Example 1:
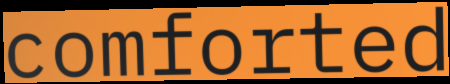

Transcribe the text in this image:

comforted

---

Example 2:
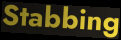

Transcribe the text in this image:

Stabbing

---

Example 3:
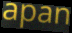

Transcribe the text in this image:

apan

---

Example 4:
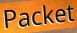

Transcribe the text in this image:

Packet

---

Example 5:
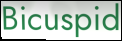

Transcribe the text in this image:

Bicuspid